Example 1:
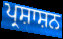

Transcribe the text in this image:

ਪ੍ਰਸ਼ਾਸ਼ਨ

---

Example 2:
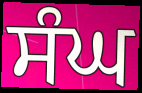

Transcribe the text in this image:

ਸੰਘ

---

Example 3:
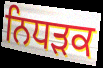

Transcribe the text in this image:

ਨਿਧਡ਼ਕ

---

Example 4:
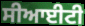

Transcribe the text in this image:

ਸੀਆਈਟੀ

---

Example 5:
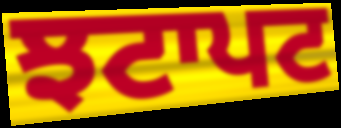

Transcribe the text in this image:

ਝਟਾਪਟ